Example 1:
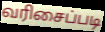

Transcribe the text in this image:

வரிசைப்படி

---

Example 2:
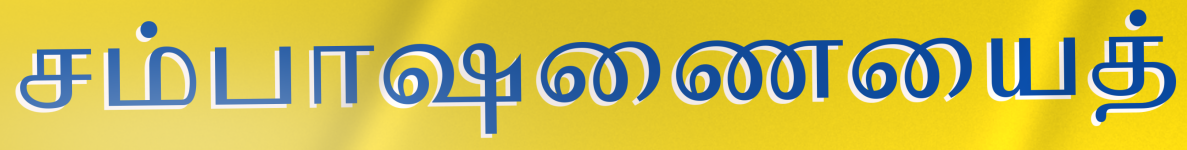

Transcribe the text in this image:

சம்பாஷணையைத்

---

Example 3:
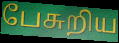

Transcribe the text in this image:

பேசுறிய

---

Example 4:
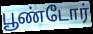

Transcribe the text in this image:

பூண்டோர்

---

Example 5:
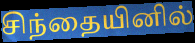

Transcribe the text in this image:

சிந்தையினில்